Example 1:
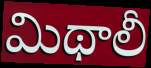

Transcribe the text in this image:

మిథాలీ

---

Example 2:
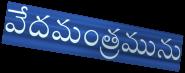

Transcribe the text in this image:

వేదమంత్రమును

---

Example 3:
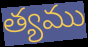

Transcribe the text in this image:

త్యము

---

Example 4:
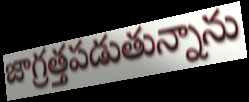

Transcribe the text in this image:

జాగ్రత్తపడుతున్నాను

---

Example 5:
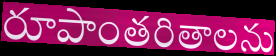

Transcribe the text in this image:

రూపాంతరితాలను